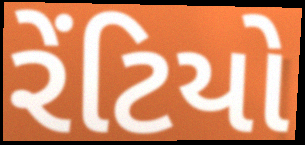
રેંટિયો